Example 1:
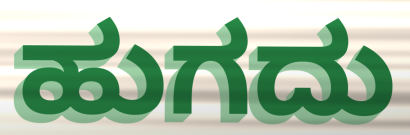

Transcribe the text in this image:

ಹುಗದು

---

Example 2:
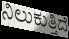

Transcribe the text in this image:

ನಿಲುಕುತ್ತಿದೆ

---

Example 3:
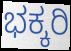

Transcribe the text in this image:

ಭಕ್ಕರಿ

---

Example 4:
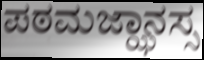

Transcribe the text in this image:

ಪಠಮಜ್ಝಾನಸ್ಸ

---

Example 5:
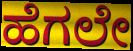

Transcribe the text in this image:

ಹೆಗಲೇ